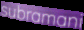
subramani